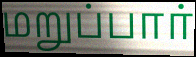
மறுப்பார்